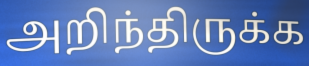
அறிந்திருக்க